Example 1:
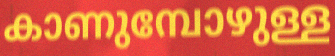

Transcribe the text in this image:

കാണുമ്പോഴുള്ള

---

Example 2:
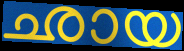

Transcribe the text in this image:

ഛായ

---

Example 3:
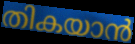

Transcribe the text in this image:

തികയാൻ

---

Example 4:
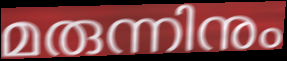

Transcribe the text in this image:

മരുന്നിനും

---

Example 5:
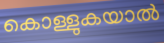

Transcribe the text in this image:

കൊള്ളുകയാൽ